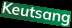
Keutsang